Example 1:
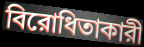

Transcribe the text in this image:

বিরোধিতাকারী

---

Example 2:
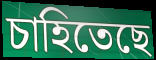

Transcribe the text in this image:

চাহিতেছে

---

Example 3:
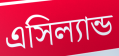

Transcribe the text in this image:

এসিল্যান্ড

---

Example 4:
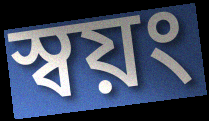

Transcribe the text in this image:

স্বয়ং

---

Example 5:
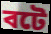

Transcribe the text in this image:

বটে